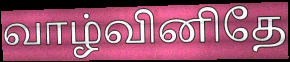
வாழ்வினிதே